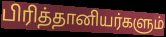
பிரித்தானியர்களும்